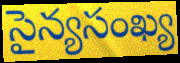
సైన్యసంఖ్య